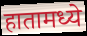
हातामध्ये